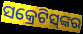
ସକ୍ରେଟିସ୍‌ଙ୍କର